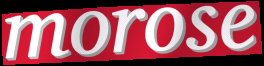
morose